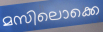
മസിലൊക്കെ